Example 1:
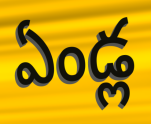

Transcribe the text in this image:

ఏండ్ల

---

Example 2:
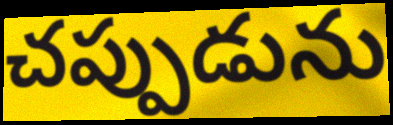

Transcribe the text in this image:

చప్పుడును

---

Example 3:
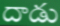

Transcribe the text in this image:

దాడు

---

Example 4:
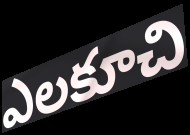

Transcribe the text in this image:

ఎలకూచి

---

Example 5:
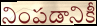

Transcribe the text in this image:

నింపడానికీ